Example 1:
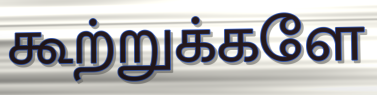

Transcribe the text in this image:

கூற்றுக்களே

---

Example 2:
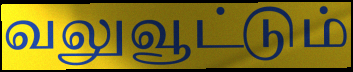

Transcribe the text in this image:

வலுவூட்டும்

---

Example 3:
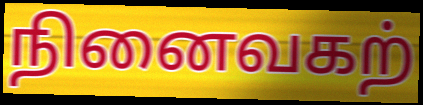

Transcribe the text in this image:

நினைவகற்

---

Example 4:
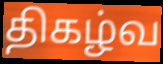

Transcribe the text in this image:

திகழ்வ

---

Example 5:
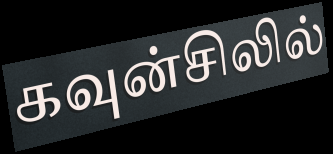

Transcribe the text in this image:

கவுன்சிலில்